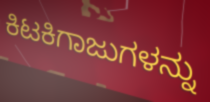
ಕಿಟಕಿಗಾಜುಗಳನ್ನು